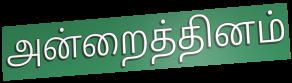
அன்றைத்தினம்